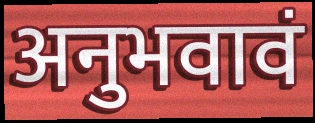
अनुभवावं